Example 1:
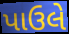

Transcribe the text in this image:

પાઉલે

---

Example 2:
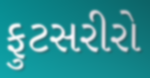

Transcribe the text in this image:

ફુટસરીરો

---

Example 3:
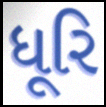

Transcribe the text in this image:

ધૂરિ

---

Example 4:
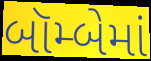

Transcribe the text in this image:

બૉમ્બેમાં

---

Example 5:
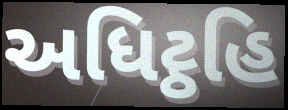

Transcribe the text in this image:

અધિટ્ઠહિ